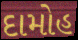
દામોહ